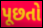
પૂછતો